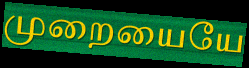
முறையையே